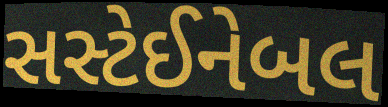
સસ્ટેઈનેબલ